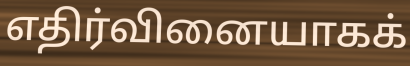
எதிர்வினையாகக்